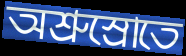
অশ্রুস্রোতে